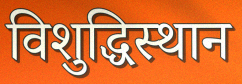
विशुद्धिस्थान